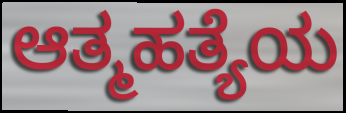
ಆತ್ಮಹತ್ಯೆಯ